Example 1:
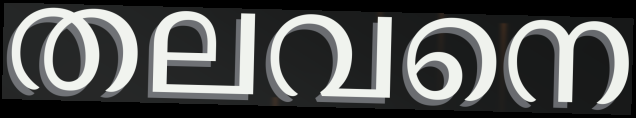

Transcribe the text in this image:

തലവനെ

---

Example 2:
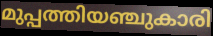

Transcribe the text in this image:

മുപ്പത്തിയഞ്ചുകാരി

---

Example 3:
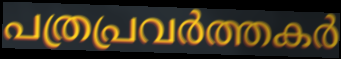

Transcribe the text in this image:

പത്രപ്രവർത്തകർ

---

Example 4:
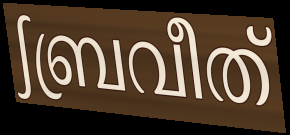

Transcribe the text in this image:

ഽബ്രവീത്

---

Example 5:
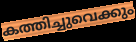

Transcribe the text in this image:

കത്തിച്ചുവെക്കും